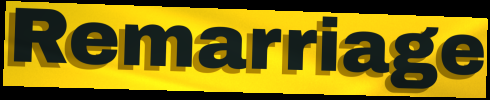
Remarriage